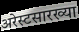
अरेस्टसारख्या